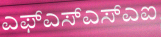
ಎಫ್ಎಸ್ಎಸ್ಎಐ